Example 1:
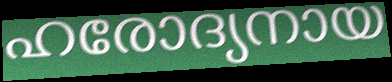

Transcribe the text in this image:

ഹരോദ്യനായ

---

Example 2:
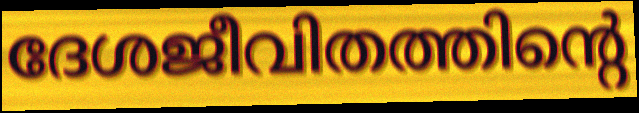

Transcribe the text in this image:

ദേശജീവിതത്തിന്റെ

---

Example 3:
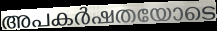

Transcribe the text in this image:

അപകർഷതയോടെ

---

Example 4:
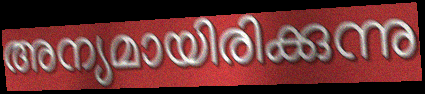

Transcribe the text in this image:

അന്യമായിരിക്കുന്നു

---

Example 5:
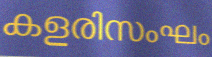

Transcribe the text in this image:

കളരിസംഘം